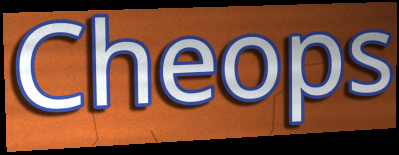
Cheops